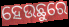
ହେଉଛୁରେ